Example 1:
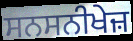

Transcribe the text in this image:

ਸਨਸਨੀਖੇਜ਼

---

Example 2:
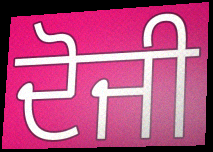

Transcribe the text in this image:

ਦੋਜੀ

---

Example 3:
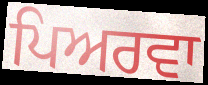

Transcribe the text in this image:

ਪਿਅਰਵਾ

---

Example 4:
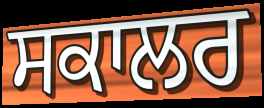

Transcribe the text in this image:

ਸਕਾਲਰ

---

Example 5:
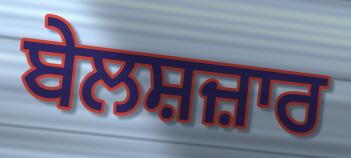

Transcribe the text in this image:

ਬੇਲਸ਼ਜ਼ਾਰ